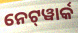
ନେଟ୍‌ୱାର୍କ